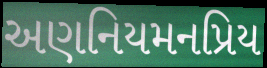
અણનિયમનપ્રિય